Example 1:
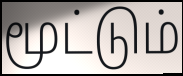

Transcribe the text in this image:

மூட்டும்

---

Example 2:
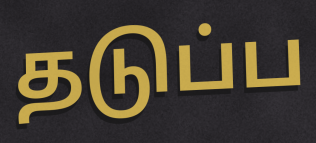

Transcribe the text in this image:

தடுப்ப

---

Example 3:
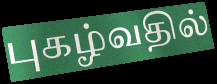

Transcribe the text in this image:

புகழ்வதில்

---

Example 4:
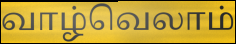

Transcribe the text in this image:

வாழ்வெலாம்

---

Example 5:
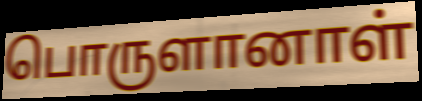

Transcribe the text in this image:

பொருளானாள்